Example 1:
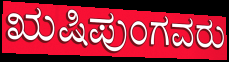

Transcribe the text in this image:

ಋಷಿಪುಂಗವರು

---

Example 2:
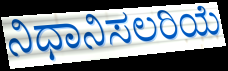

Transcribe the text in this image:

ನಿಧಾನಿಸಲರಿಯೆ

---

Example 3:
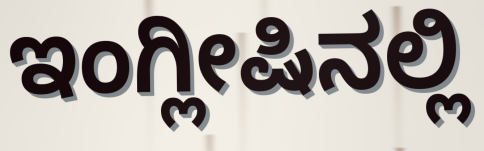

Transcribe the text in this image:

ಇಂಗ್ಲೀಷಿನಲ್ಲಿ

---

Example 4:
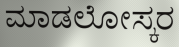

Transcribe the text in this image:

ಮಾಡಲೋಸ್ಕರ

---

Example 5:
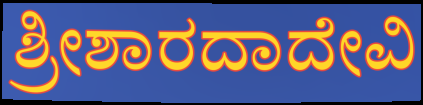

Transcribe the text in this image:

ಶ್ರೀಶಾರದಾದೇವಿ